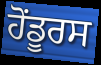
ਹੋਂਡੂਰਸ